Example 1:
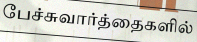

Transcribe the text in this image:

பேச்சுவார்த்தைகளில்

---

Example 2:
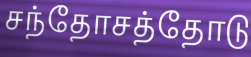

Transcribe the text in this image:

சந்தோசத்தோடு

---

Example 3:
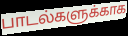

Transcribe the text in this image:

பாடல்களுக்காக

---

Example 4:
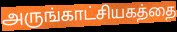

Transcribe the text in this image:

அருங்காட்சியகத்தை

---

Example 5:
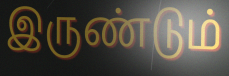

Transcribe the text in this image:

இருண்டும்